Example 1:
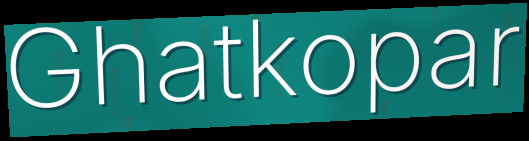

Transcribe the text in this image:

Ghatkopar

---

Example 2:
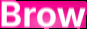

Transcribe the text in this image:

Brow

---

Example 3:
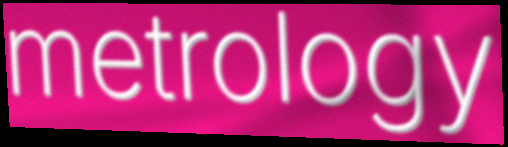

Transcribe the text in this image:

metrology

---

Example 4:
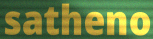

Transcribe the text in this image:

satheno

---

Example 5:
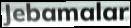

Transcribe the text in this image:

Jebamalar